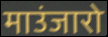
माउंजारो